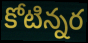
కోటిన్నర